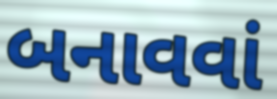
બનાવવાં